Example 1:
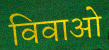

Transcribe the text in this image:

विवाओ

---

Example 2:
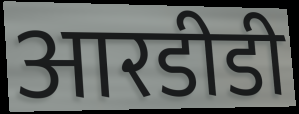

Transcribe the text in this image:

आरडीडी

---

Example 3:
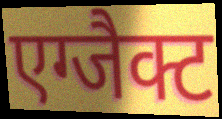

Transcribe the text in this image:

एग्जैक्ट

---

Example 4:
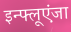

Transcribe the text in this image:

इन्फ्लूएंजा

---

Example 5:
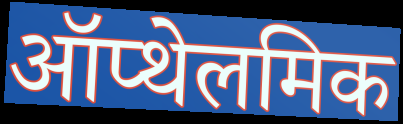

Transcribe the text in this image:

ऑप्थेलमिक